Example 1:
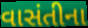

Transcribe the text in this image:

વાસંતીના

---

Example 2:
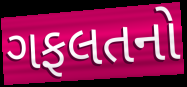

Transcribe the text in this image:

ગફલતનો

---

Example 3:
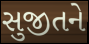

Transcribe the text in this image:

સુજીતને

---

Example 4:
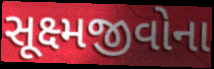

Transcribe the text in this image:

સૂક્ષ્મજીવોના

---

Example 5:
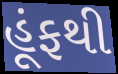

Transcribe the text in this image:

હૂંફથી